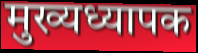
मुख्यध्यापक